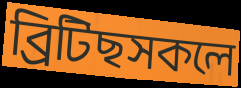
ব্ৰিটিছসকলে